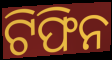
ଟିଫିନ